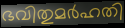
ഭവിതുമർഹതി